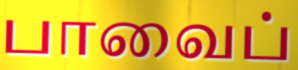
பாவைப்